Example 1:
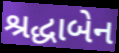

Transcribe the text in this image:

શ્રદ્ધાબેન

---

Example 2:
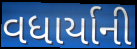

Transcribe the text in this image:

વધાર્યાની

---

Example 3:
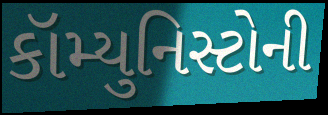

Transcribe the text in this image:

કૉમ્યુનિસ્ટોની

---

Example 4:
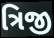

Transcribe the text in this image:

ત્રિજી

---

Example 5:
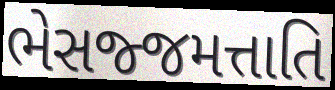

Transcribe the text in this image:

ભેસજ્જમત્તાતિ